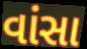
વાંસા